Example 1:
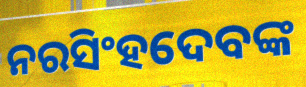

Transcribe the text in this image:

ନରସିଂହଦେବଙ୍କ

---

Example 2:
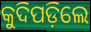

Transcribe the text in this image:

କୁଦିପଡ଼ିଲେ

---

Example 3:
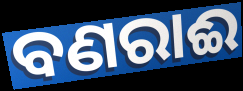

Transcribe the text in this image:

ବଣରାଈ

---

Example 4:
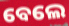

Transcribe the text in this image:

ବେଲେ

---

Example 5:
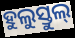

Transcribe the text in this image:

ହୁଲୁସ୍ତୁଲ୍